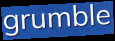
grumble